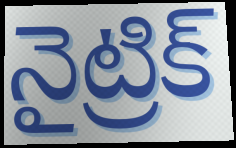
నైట్రిక్